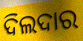
ଦିଲଦାର